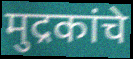
मुद्रकांचे